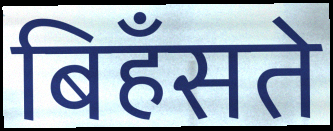
बिहँसते